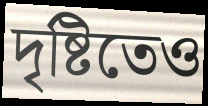
দৃষ্টিতেও